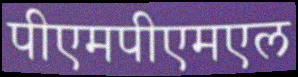
पीएमपीएमएल